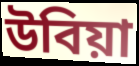
উবিয়া